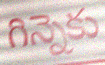
గిన్నెకు